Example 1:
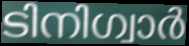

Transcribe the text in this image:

ടിനിഗ്വാർ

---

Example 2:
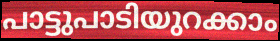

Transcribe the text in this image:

പാട്ടുപാടിയുറക്കാം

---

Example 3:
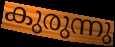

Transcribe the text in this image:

കുരുന്നു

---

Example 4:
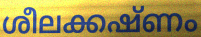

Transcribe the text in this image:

ശീലക്കഷ്ണം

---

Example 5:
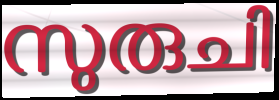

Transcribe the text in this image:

സുരുചി